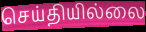
செய்தியில்லை